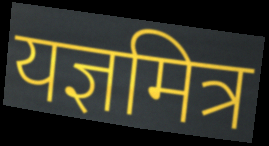
यज्ञमित्र